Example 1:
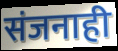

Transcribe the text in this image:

संजनाही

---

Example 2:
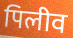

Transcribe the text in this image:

पिलीव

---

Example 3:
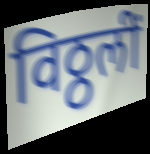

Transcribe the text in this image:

विठ्ठलीं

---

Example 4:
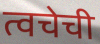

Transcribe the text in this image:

त्वचेची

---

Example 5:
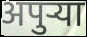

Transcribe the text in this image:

अपुर्‍या